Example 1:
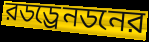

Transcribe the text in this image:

রডড্রেনডনের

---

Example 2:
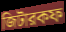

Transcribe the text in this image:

জিটারকফ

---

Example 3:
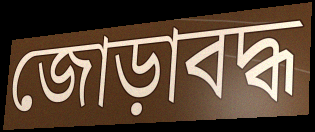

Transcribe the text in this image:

জোড়াবদ্ধ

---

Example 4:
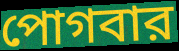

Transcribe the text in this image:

পোগবার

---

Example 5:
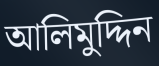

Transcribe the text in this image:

আলিমুদ্দিন